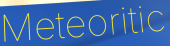
Meteoritic